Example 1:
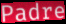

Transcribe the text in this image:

Padre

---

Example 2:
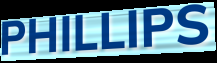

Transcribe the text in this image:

PHILLIPS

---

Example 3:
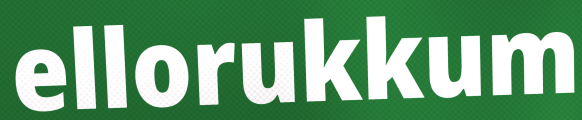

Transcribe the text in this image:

ellorukkum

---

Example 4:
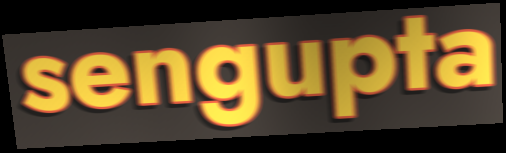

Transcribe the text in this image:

sengupta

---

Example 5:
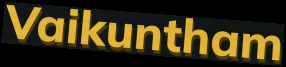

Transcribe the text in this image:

Vaikuntham